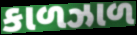
કાળઝાળ